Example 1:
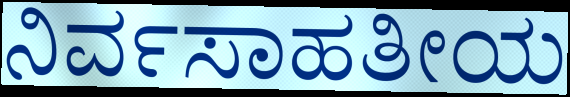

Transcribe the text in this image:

ನಿರ್ವಸಾಹತೀಯ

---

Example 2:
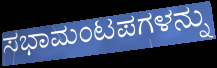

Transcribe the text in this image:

ಸಭಾಮಂಟಪಗಳನ್ನು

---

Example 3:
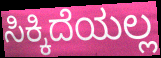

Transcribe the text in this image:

ಸಿಕ್ಕಿದೆಯಲ್ಲ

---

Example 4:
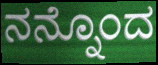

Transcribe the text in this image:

ನನ್ನೊಂದ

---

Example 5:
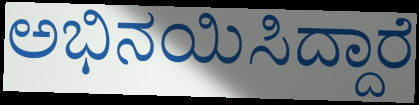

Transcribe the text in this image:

ಅಭಿನಯಿಸಿದ್ದಾರೆ